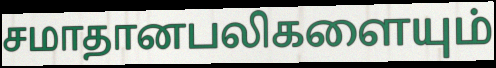
சமாதானபலிகளையும்